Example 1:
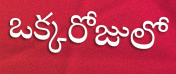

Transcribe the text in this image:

ఒక్కరోజులో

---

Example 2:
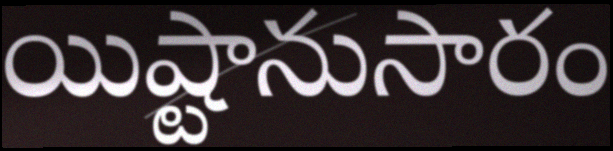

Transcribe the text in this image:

యిష్టానుసారం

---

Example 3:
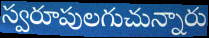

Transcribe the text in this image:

స్వరూపులగుచున్నారు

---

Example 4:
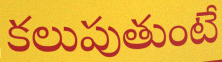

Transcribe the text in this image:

కలుపుతుంటే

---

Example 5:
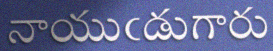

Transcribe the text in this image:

నాయుఁడుగారు